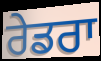
ਰੇਡਰਾ